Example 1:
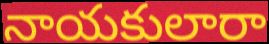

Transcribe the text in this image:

నాయకులారా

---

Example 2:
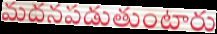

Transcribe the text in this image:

మదనపడుతుంటారు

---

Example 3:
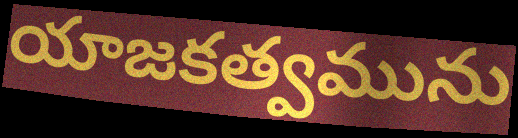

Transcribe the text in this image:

యాజకత్వమును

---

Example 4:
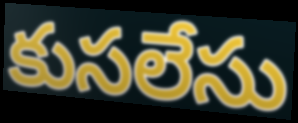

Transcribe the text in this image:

కుసలేసు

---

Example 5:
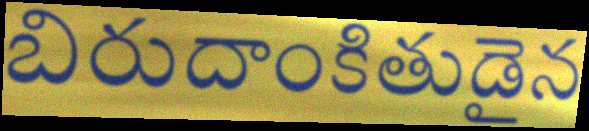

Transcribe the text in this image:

బిరుదాంకితుడైన